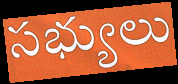
సభ్యులు